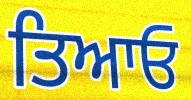
ਤਿਆਓ